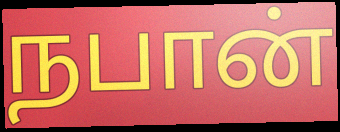
நபான்